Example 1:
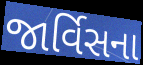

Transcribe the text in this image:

જાર્વિસના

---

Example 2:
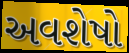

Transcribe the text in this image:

અવશેષો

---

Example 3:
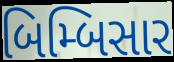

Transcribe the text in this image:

બિમ્બિસાર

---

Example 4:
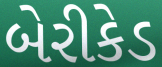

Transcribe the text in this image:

બેરીકેડ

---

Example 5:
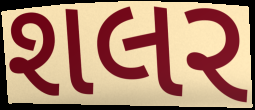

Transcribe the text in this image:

શલર